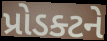
પ્રોડક્ટને